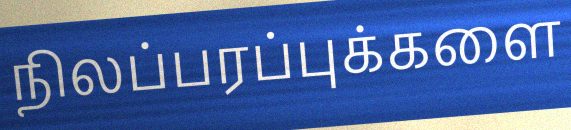
நிலப்பரப்புக்களை